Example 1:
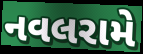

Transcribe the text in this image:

નવલરામે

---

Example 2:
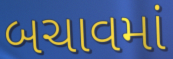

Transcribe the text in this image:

બચાવમાં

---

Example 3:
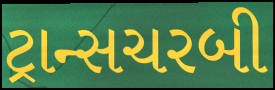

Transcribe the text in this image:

ટ્રાન્સચરબી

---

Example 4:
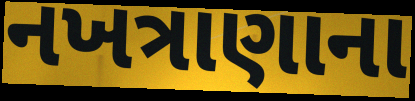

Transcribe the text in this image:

નખત્રાણાના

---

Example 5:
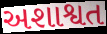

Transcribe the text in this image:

અશાશ્વત